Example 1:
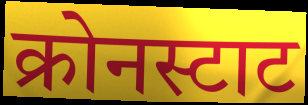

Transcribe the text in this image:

क्रोनस्टाट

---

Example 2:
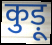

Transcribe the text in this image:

कुड़ू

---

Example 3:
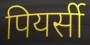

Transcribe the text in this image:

पियर्सी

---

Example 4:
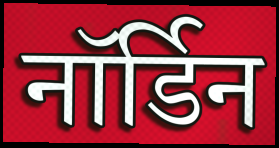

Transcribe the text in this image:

नॉर्डिन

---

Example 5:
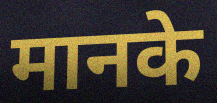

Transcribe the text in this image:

मानके